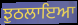
ਝੁਠਲਾਇਆ